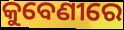
କୁବେଣୀରେ